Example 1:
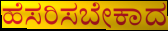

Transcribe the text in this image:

ಹೆಸರಿಸಬೇಕಾದ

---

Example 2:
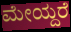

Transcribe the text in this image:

ಮೇಯ್ದರೆ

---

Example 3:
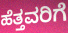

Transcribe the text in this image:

ಹೆತ್ತವರಿಗೆ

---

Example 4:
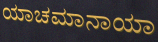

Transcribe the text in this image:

ಯಾಚಮಾನಾಯಾ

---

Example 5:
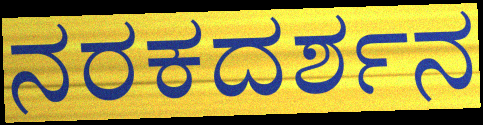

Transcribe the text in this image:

ನರಕದರ್ಶನ